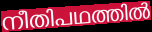
നീതിപഥത്തിൽ